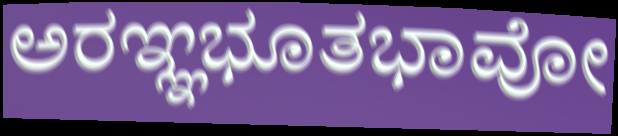
ಅರಞ್ಞಭೂತಭಾವೋ